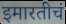
इमारतीचं